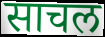
साचल